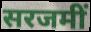
सरजमीं